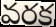
వరక